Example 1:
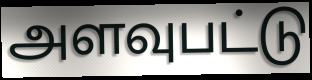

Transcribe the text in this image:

அளவுபட்டு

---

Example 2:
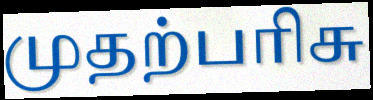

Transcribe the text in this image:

முதற்பரிசு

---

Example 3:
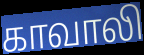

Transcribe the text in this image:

காவாலி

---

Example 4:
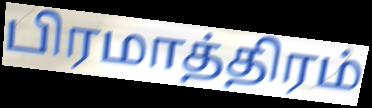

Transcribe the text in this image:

பிரமாத்திரம்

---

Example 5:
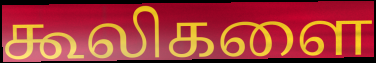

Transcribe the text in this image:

கூலிகளை